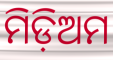
ମିଡ଼ିଅମ